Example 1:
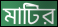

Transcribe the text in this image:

মাটির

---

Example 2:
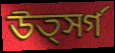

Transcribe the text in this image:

উত্সর্গ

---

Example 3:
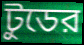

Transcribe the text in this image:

টুডের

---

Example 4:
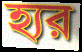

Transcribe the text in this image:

হ্যর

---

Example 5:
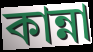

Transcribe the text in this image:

কান্না